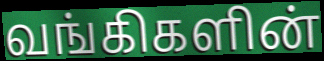
வங்கிகளின்